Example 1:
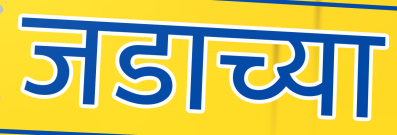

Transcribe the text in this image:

जडाच्या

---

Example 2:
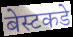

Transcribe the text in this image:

बेस्टकडे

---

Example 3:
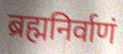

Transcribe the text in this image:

ब्रह्मनिर्वाणं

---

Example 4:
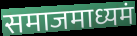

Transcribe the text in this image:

समाजमाध्यमं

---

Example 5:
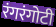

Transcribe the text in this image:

रंगरंगोटी